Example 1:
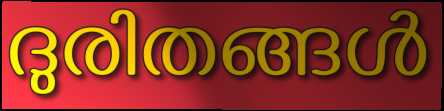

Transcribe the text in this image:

ദുരിതങ്ങൾ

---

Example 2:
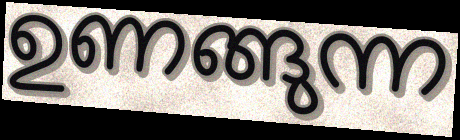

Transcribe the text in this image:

ഉണങ്ങുന്ന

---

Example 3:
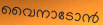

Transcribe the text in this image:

വൈനാടോൻ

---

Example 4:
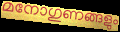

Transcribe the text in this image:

മനോഗുണങ്ങളും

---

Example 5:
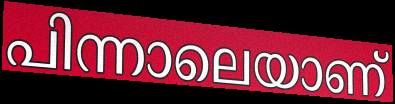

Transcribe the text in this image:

പിന്നാലെയാണ്